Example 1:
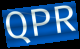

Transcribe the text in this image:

QPR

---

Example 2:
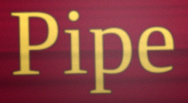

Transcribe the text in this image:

Pipe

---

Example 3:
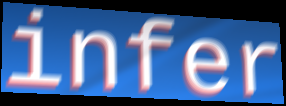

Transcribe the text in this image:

infer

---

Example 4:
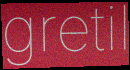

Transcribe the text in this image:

gretil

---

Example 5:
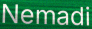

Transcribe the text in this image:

Nemadi